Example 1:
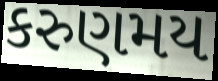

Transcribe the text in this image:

કરુણમય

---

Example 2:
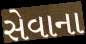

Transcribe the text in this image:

સેવાના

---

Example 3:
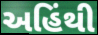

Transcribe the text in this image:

અહિંથી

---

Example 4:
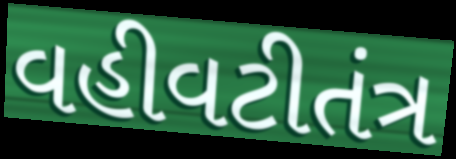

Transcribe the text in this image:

વહીવટીતંત્ર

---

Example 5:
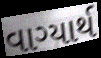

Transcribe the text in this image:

વાગ્યાર્થ